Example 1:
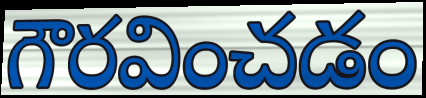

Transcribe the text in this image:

గౌరవించడం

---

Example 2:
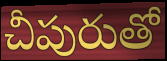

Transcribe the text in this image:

చీపురుతో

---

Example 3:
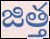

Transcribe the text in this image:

జిత్త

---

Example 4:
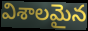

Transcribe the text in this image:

విశాలమైన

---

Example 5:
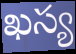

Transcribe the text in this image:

ఖస్య